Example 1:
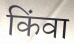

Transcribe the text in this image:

किंवा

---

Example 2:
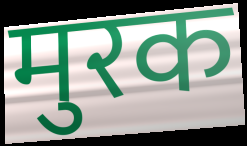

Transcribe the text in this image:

मुरक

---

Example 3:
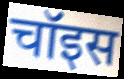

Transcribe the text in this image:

चॉइस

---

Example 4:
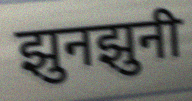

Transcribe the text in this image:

झुनझुनी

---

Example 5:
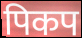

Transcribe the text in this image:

पिकप